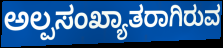
ಅಲ್ಪಸಂಖ್ಯಾತರಾಗಿರುವ